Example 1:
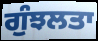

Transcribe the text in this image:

ਗੁੰਝਲਤਾ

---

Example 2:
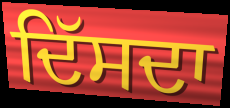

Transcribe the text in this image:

ਦਿੱਸਦਾ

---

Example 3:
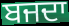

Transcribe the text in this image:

ਬਜਦਾ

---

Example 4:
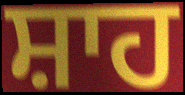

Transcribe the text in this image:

ਸ਼ਾਹ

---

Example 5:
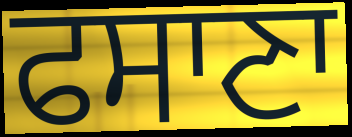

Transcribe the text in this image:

ਫਸਾਣਾ